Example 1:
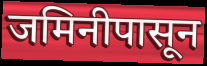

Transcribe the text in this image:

जमिनीपासून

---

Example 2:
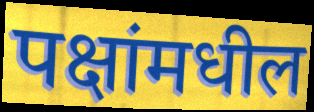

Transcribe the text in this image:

पक्षांमधील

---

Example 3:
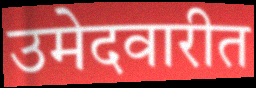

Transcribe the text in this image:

उमेदवारीत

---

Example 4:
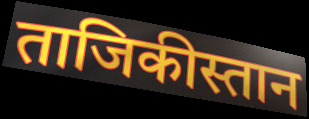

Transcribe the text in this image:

ताजिकीस्तान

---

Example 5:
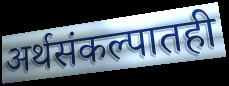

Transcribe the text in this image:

अर्थसंकल्पातही